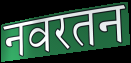
नवरतन